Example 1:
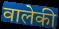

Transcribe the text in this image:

वालेकी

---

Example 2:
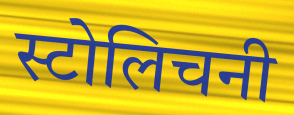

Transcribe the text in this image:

स्टोलिचनी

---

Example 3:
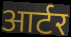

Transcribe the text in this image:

आर्टर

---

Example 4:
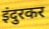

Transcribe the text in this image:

इंदुरकर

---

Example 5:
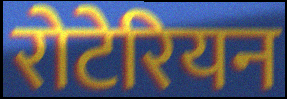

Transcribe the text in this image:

रोटेरियन